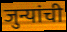
जुन्यांची